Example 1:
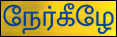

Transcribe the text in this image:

நேர்கீழே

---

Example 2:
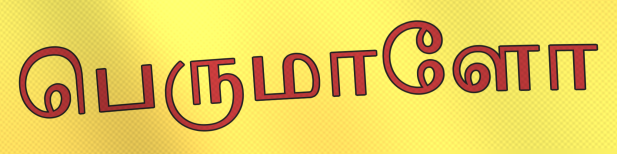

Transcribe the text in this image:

பெருமாளோ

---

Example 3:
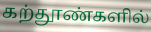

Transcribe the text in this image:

கற்தூண்களில்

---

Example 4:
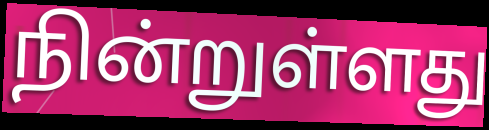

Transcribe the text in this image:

நின்றுள்ளது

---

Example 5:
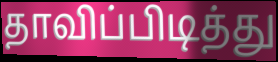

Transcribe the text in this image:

தாவிப்பிடித்து